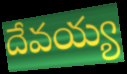
దేవయ్య